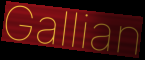
Gallian